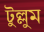
টুল্লুম